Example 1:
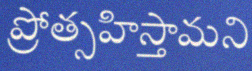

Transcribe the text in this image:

ప్రోత్సహిస్తామని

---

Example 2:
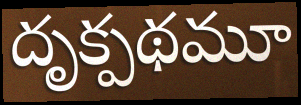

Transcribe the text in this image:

దృక్పథమూ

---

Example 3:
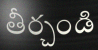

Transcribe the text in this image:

తీర్చండి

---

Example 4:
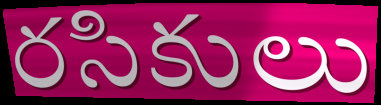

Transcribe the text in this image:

రసికులు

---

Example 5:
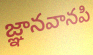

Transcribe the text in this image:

జ్ఞానవానపి